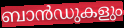
ബാൻഡുകളും